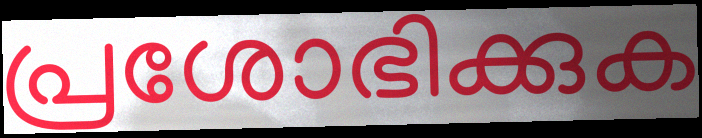
പ്രശോഭിക്കുക